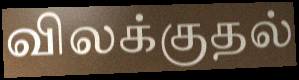
விலக்குதல்